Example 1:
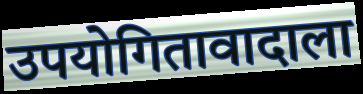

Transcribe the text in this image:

उपयोगितावादाला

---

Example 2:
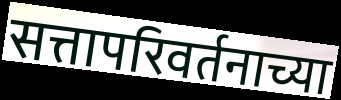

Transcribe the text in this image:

सत्तापरिवर्तनाच्या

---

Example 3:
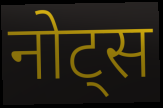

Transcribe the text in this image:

नोट्स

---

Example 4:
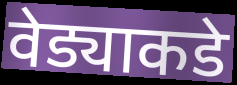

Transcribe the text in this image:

वेड्याकडे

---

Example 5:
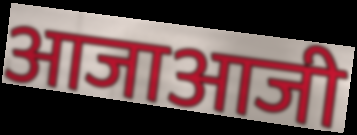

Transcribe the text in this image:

आजाआजी